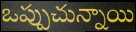
ఒప్పుచున్నాయి